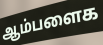
ஆம்பளைக